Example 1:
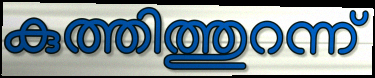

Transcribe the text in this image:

കുത്തിത്തുറന്ന്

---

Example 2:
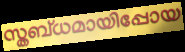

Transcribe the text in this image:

സ്തബ്ധമായിപ്പോയ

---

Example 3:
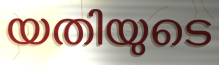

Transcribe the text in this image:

യതിയുടെ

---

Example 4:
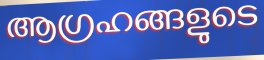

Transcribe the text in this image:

ആഗ്രഹങ്ങളുടെ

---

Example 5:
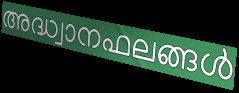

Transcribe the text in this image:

അദ്ധ്വാനഫലങ്ങൾ